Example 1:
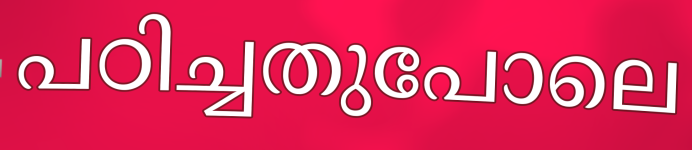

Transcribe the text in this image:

പഠിച്ചതുപോലെ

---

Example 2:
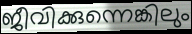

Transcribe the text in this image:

ജീവിക്കുന്നെങ്കിലും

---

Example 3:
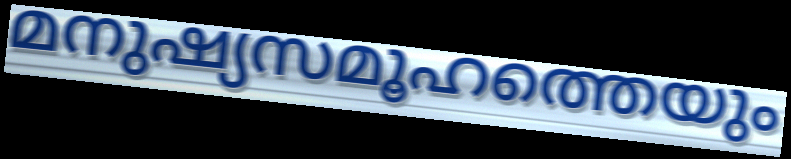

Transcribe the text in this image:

മനുഷ്യസമൂഹത്തെയും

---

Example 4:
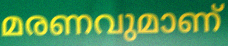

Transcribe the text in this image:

മരണവുമാണ്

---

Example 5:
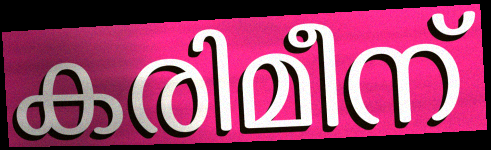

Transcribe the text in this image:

കരിമീന്